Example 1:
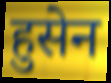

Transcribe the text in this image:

हुसेन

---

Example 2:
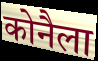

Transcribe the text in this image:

कोनैला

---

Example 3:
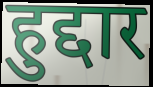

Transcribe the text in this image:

हुद्दार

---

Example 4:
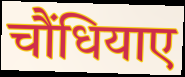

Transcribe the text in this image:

चौंधियाए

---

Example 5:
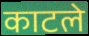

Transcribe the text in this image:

काटले